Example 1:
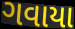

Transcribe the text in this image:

ગવાયા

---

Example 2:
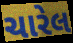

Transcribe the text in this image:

ચારેલ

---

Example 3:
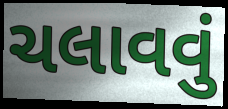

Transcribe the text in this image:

ચલાવવું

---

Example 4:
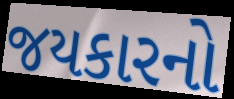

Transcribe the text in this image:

જયકારનો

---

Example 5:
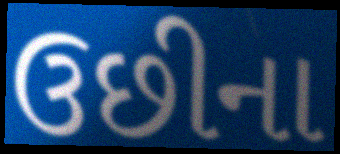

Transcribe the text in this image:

ઉછીના